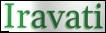
Iravati